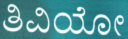
ತಿವಿಯೋ